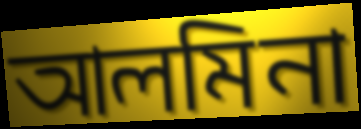
আলমিনা